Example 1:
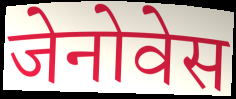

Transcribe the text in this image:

जेनोवेस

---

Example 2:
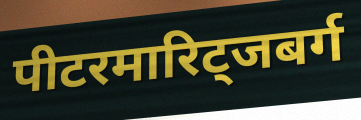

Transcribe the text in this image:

पीटरमारिट्जबर्ग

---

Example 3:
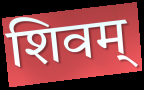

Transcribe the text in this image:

शिवम्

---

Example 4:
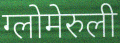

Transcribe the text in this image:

ग्लोमेरुली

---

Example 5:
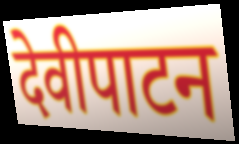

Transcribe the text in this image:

देवीपाटन